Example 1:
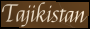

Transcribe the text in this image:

Tajikistan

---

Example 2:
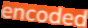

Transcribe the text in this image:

encoded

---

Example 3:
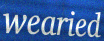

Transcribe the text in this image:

wearied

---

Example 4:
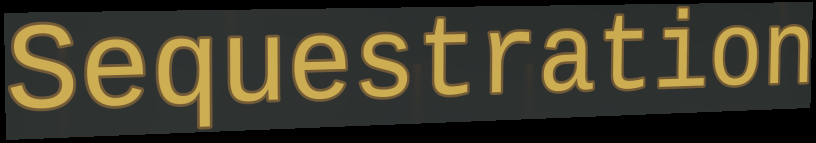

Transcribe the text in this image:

Sequestration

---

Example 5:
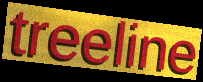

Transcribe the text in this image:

treeline